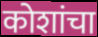
कोशांचा